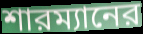
শারম্যানের